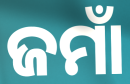
ଜମାଁ